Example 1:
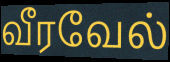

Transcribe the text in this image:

வீரவேல்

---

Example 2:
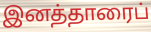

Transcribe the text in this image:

இனத்தாரைப்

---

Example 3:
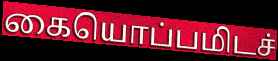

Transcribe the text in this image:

கையொப்பமிடச்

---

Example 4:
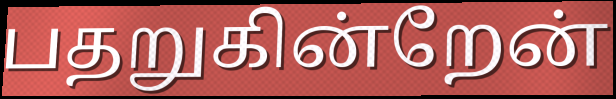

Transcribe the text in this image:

பதறுகின்றேன்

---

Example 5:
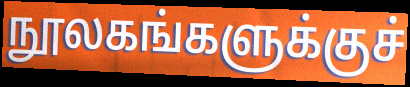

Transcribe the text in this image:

நூலகங்களுக்குச்